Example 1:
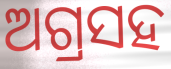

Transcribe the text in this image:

ଅଗ୍ରସହ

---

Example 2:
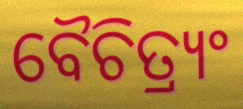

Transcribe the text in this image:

ବୈଚିତ୍ର୍ୟଂ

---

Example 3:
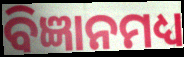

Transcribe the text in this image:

ବିଜ୍ଞାନମଧ୍ୟ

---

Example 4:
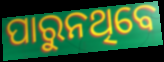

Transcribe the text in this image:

ପାରୁନଥିବେ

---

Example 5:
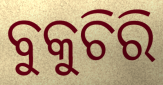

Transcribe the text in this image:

ବୁକୁଚିରି